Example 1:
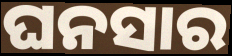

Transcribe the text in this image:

ଘନସାର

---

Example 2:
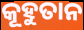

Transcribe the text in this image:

କୂହୁତାନ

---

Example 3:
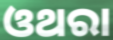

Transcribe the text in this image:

ଓଥରା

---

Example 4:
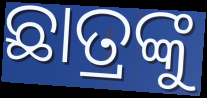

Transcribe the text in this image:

ଛାତ୍ରଙ୍କୁ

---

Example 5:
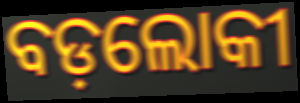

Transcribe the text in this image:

ବଡ଼ଲୋକୀ